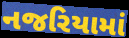
નજરિયામાં